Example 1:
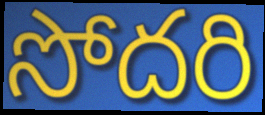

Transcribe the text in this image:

సోదరి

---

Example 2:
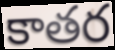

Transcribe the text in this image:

కాతర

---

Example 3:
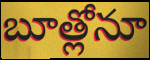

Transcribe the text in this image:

బూత్లోనూ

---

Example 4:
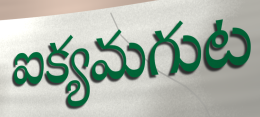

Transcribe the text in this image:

ఐక్యమగుట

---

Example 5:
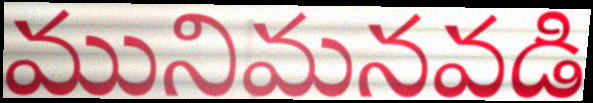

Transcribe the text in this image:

మునిమనవడి